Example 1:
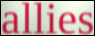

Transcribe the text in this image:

allies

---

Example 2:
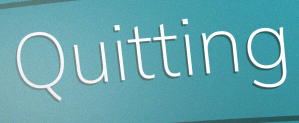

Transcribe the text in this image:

Quitting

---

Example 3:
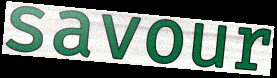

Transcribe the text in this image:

savour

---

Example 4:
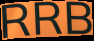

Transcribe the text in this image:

RRB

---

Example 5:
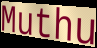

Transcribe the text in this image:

Muthu